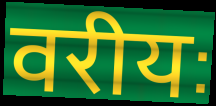
वरीयः